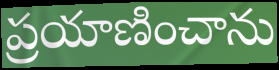
ప్రయాణించాను